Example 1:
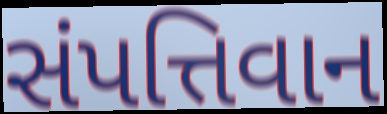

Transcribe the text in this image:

સંપત્તિવાન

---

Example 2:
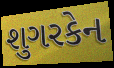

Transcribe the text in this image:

શુગરકેન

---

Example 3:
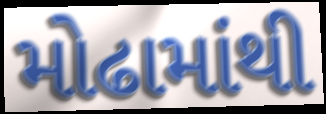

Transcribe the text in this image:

મોઢામાંથી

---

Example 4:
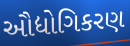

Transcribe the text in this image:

ઔદ્યોગિકરણ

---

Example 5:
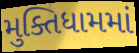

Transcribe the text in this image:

મુક્તિધામમાં